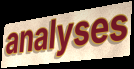
analyses